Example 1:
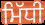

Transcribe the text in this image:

ਮਿੱਧੀ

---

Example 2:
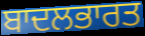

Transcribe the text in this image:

ਬਾਦਲਭਾਰਤ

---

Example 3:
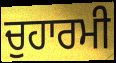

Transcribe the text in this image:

ਚੁਹਾਰਮੀ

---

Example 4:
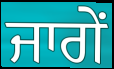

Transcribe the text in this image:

ਜਾਗੇਂ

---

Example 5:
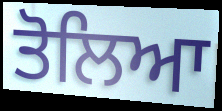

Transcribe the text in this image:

ਤੋਲਿਆ